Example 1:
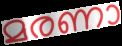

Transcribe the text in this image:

മരണാ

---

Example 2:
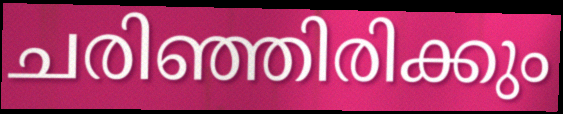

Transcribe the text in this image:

ചരിഞ്ഞിരിക്കും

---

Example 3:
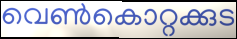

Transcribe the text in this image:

വെൺകൊറ്റക്കുട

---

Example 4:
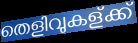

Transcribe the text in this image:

തെളിവുകള്ക്ക്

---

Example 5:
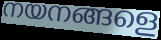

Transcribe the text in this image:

നയനങ്ങളെ